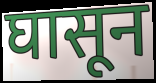
घासून